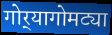
गोर्यागोमट्या